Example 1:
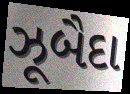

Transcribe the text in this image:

ઝૂબૈદા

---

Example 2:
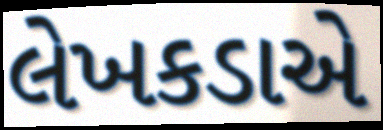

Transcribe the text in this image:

લેખકડાએ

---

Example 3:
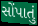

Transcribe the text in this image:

સોંપાતું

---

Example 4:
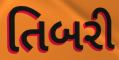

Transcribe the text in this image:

તિબરી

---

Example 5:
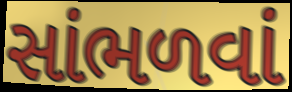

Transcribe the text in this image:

સાંભળવાં